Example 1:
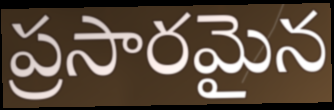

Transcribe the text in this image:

ప్రసారమైన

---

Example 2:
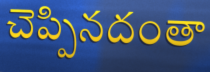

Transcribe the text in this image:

చెప్పినదంతా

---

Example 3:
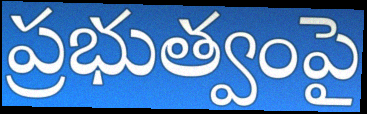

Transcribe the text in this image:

ప్రభుత్వంపై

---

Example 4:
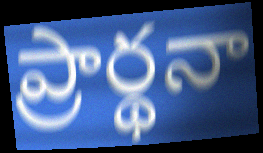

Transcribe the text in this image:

ప్రార్థనా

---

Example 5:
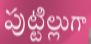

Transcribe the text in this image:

పుట్టిల్లుగా